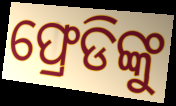
ଫ୍ରେଡିଙ୍କୁ